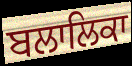
ਬਲਾਲਿਕਾ